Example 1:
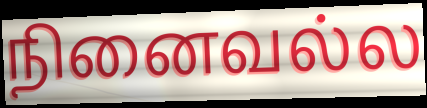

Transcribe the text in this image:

நினைவல்ல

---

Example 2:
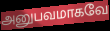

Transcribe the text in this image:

அனுபவமாகவே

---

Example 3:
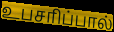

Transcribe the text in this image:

உபசரிப்பால்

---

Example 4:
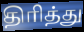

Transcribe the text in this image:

திரித்து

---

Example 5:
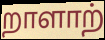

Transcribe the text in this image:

றாளாற்